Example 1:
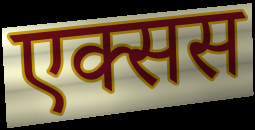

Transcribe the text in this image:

एक्सस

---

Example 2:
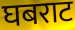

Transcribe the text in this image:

घबराट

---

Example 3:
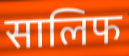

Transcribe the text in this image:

सालिफ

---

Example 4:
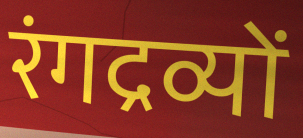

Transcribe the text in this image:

रंगद्रव्यों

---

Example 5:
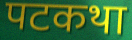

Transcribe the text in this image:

पटकथा